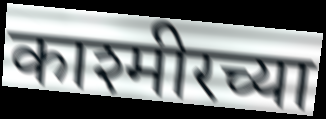
काश्मीरच्या